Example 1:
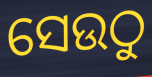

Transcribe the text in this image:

ସେଉଠୁ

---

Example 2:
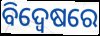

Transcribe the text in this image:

ବିଦ୍ୱେଷରେ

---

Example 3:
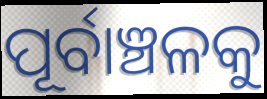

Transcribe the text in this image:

ପୂର୍ବାଞ୍ଚଳକୁ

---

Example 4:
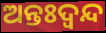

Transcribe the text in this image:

ଅନ୍ତଃଦ୍ବନ୍ଦ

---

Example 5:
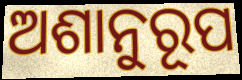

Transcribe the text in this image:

ଅଶାନୁରୂପ